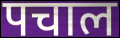
पचाल